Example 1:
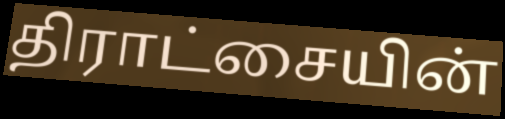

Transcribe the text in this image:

திராட்சையின்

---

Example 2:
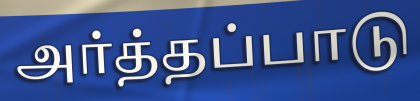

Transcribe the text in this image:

அர்த்தப்பாடு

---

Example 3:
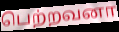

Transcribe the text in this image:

பெற்றவனா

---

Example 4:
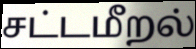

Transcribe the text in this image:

சட்டமீறல்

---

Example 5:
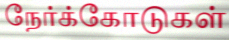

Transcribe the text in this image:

நேர்க்கோடுகள்